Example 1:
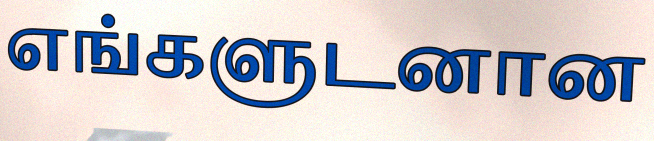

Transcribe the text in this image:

எங்களுடனான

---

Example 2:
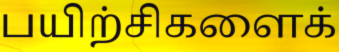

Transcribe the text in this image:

பயிற்சிகளைக்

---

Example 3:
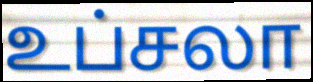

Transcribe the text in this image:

உப்சலா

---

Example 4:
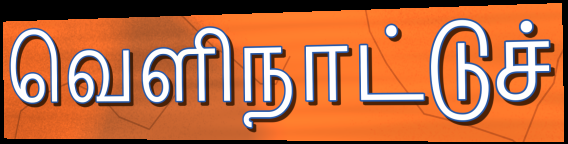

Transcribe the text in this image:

வெளிநாட்டுச்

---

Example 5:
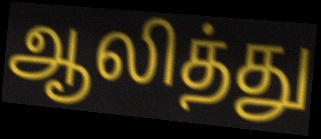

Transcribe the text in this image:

ஆலித்து